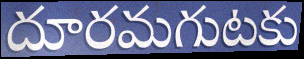
దూరమగుటకు